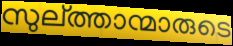
സുല്ത്താന്മാരുടെ